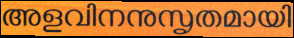
അളവിനനുസൃതമായി